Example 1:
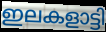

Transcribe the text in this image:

ഇലകളാട്ടി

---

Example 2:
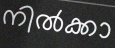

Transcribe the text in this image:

നിൽക്കാ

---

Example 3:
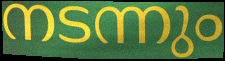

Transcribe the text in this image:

നടന്നും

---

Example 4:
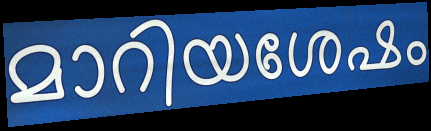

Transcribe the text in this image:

മാറിയശേഷം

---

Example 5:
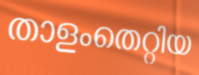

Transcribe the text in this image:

താളംതെറ്റിയ